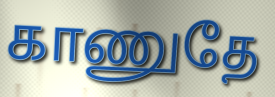
காணுதே